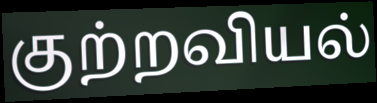
குற்றவியல்